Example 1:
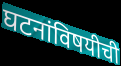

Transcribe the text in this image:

घटनांविषयीची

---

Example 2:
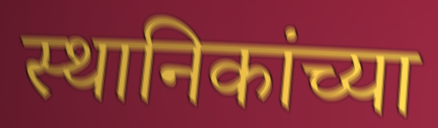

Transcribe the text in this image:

स्थानिकांच्या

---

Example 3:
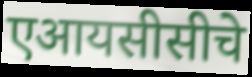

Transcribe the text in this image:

एआयसीसीचे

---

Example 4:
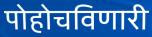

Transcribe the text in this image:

पोहोचविणारी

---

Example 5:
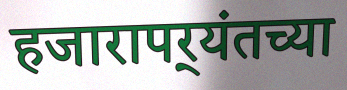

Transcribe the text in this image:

हजारापर्यंतच्या